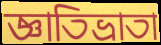
জ্ঞাতিভ্রাতা